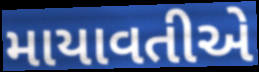
માયાવતીએ